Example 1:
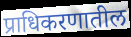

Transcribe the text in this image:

प्राधिकरणातील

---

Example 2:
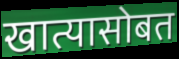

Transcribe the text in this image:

खात्यासोबत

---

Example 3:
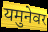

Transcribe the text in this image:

यमुनेवर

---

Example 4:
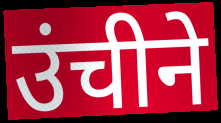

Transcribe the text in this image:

उंचीने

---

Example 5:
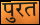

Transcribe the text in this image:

पुरत